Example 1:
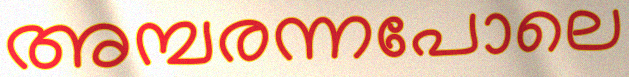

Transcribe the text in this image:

അമ്പരന്നപോലെ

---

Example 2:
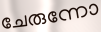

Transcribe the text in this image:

ചേരുന്നോ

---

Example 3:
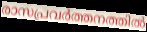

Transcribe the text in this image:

രാസപ്രവർത്തനത്തിൽ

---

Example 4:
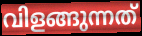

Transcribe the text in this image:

വിളങ്ങുന്നത്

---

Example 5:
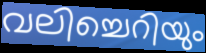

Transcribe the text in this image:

വലിച്ചെറിയും